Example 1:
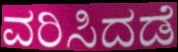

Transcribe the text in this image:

ವರಿಸಿದಡೆ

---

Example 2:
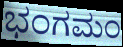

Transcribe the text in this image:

ಭಂಗಮಂ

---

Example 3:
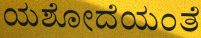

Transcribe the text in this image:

ಯಶೋದೆಯಂತೆ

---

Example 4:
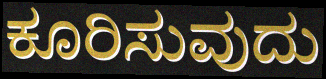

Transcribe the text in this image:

ಕೂರಿಸುವುದು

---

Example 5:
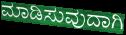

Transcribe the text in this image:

ಮಾಡಿಸುವುದಾಗಿ